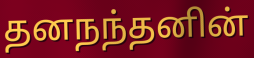
தனநந்தனின்